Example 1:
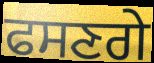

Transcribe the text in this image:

ਫਸਣਗੇ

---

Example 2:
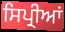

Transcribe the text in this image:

ਸਿਪ੍ਰੀਆਂ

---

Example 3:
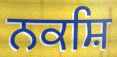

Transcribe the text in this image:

ਨਕਸ਼ਿ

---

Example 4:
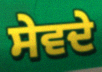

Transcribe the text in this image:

ਸੇਵਦੇ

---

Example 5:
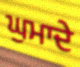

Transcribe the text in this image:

ਘੁਮਾਦੇ